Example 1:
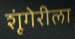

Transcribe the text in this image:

श्रृंगेरीला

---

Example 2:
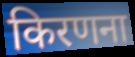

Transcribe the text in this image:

किरणना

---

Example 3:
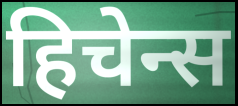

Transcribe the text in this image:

हिचेन्स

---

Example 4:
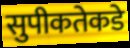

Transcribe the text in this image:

सुपीकतेकडे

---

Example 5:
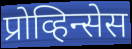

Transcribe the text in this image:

प्रोव्हिन्सेस